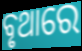
ବୃଥାରେ